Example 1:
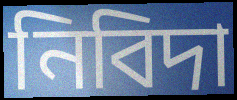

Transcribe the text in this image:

নিবিদা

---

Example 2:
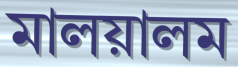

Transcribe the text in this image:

মালয়ালম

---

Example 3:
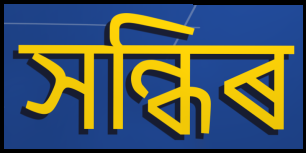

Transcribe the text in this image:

সন্ধিৰ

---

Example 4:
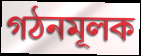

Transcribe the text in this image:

গঠনমূলক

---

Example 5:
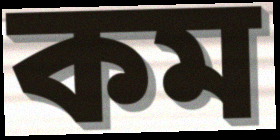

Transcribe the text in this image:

কম